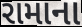
રામાના